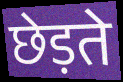
छेड़ते